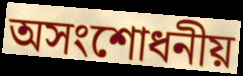
অসংশোধনীয়